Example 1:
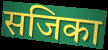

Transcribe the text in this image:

सजिका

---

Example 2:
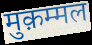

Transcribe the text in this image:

मुक़म्मल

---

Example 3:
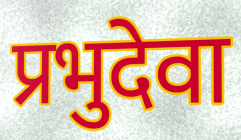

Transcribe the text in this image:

प्रभुदेवा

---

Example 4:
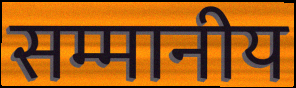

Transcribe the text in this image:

सम्मानीय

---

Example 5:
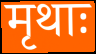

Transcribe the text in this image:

मृथाः